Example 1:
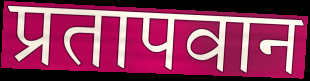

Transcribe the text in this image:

प्रतापवान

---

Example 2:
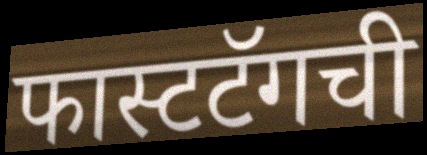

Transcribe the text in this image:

फास्टटॅगची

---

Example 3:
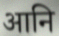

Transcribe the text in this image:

आनि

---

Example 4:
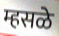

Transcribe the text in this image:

म्हसळे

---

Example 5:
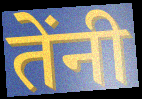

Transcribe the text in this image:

तेंनी